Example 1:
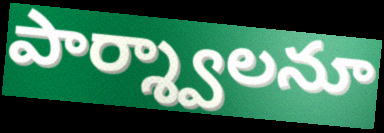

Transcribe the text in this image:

పార్శ్వాలనూ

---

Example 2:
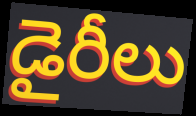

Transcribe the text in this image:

డైరీలు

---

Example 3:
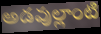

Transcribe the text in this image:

అడవుల్లాంటి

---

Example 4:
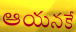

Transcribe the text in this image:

ఆయనకే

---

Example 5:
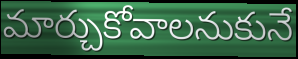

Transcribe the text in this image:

మార్చుకోవాలనుకునే